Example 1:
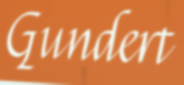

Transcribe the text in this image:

Gundert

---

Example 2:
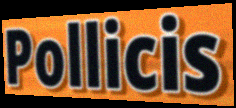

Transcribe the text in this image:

Pollicis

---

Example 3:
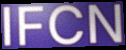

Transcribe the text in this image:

IFCN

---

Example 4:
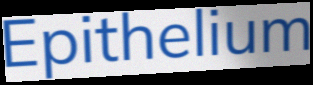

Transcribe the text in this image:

Epithelium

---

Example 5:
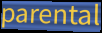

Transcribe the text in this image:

parental